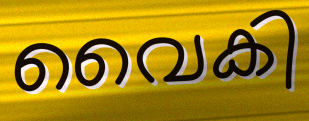
വൈകി